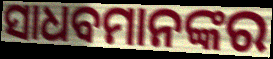
ସାଧବମାନଙ୍କର